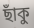
ছাঁকু